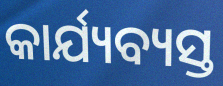
କାର୍ଯ୍ୟବ୍ୟସ୍ତ